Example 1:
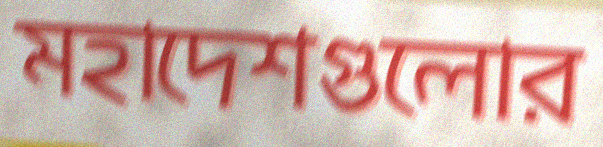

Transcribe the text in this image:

মহাদেশগুলোর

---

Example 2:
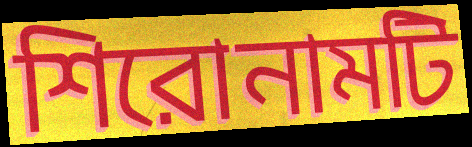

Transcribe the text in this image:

শিরোনামটি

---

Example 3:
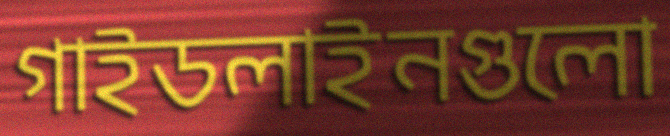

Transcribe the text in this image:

গাইডলাইনগুলো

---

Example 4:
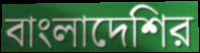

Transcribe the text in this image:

বাংলাদেশির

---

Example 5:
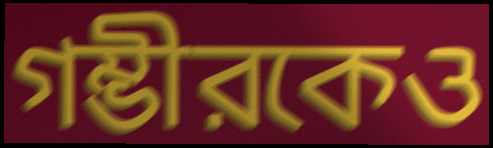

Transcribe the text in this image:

গম্ভীরকেও